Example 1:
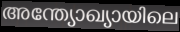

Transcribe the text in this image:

അന്ത്യോഖ്യായിലെ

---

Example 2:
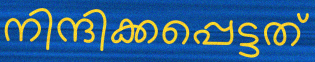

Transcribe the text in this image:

നിന്ദിക്കപ്പെട്ടത്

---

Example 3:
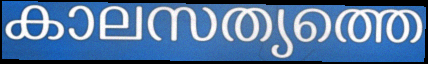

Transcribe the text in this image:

കാലസത്യത്തെ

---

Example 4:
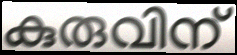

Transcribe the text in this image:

കുരുവിന്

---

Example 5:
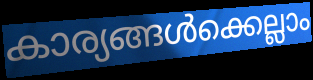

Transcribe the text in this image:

കാര്യങ്ങൾക്കെല്ലാം